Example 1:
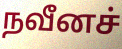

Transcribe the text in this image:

நவீனச்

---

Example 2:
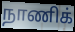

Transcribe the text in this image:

நாணிக்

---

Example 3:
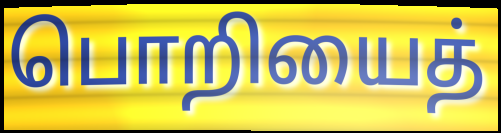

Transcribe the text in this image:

பொறியைத்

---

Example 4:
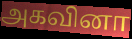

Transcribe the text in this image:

அகவினா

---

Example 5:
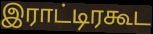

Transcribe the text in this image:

இராட்டிரகூட